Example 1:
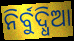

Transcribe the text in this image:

ନିର୍ବୁଦ୍ଧିଆ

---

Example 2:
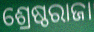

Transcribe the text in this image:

ଶ୍ରେଷ୍ଠରାଜା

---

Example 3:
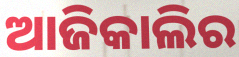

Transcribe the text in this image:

ଆଜିକାଲିର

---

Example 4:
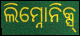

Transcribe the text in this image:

ଲିମ୍ନୋନିକ୍ସ୍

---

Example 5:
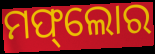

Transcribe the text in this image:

ମଫ୍‌ଲୋର